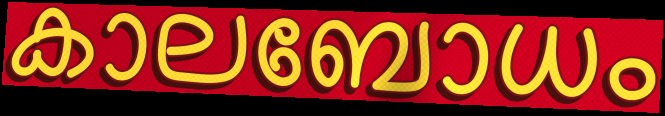
കാലബോധം